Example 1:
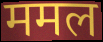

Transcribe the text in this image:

ममल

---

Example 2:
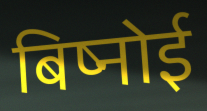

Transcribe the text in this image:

बिष्नोई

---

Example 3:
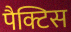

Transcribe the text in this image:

पैक्टिस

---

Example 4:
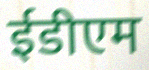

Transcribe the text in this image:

ईडीएम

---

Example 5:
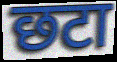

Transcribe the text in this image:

छटा